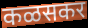
कळसकर